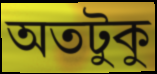
অতটুকু